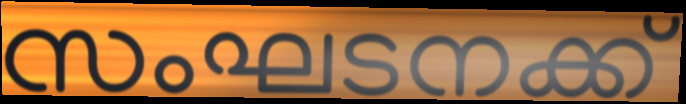
സംഘടനക്ക്